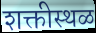
शक्तीस्थळ